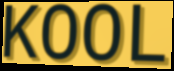
KOOL